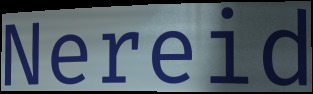
Nereid